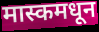
मास्कमधून